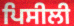
ਪਿਸੀਲੀ